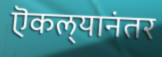
ऎकल्यानंतर